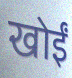
खोईं